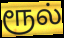
ரூல்